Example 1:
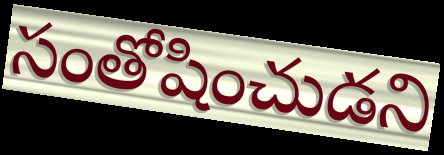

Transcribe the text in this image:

సంతోషించుడని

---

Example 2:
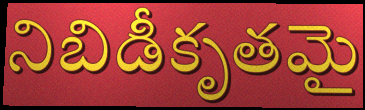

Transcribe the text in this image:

నిబిడీకృతమై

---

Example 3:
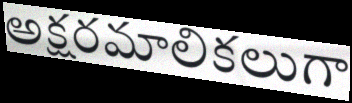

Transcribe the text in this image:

అక్షరమాలికలుగా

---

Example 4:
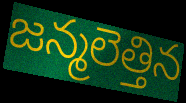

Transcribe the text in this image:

జన్మలెత్తిన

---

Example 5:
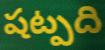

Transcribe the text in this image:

షట్పది